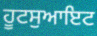
ਹੂਟਸੁਆਇਟ